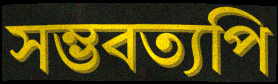
সম্ভবত্যপি